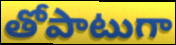
తోపాటుగా